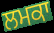
ਲਮਕਾ